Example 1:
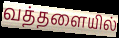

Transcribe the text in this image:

வத்தளையில்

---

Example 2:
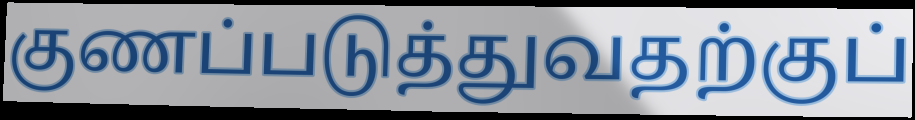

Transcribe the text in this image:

குணப்படுத்துவதற்குப்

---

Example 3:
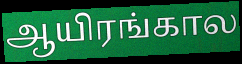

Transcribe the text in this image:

ஆயிரங்கால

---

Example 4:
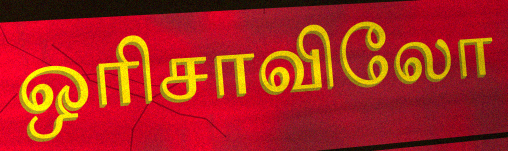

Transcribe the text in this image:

ஒரிசாவிலோ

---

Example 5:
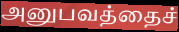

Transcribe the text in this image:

அனுபவத்தைச்